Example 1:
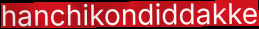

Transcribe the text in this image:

hanchikondiddakke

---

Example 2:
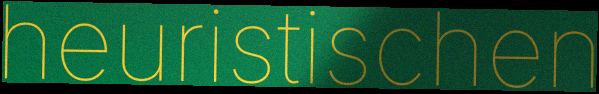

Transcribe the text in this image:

heuristischen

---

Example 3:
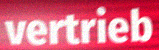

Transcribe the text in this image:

vertrieb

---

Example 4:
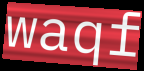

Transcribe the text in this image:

waqf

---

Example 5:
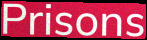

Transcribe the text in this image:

Prisons